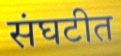
संघटीत